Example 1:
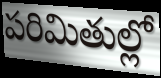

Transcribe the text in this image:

పరిమితుల్లో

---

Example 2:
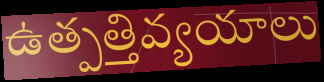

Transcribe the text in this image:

ఉత్పత్తివ్యయాలు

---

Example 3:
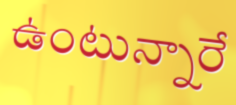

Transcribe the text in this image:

ఉంటున్నారే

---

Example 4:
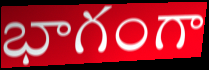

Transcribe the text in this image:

భాగంగా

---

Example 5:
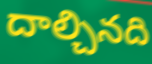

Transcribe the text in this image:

దాల్చినది